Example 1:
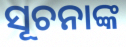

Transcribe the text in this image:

ସୂଚନାଙ୍କ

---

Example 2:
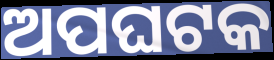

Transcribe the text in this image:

ଅପଘଟକ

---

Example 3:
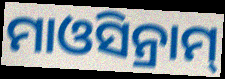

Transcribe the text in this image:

ମାଓସିନ୍ରାମ୍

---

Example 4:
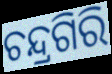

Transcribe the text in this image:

ଚନ୍ଦ୍ରଗିରି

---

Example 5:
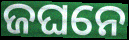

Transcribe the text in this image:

ଜଘନେ